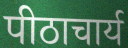
पीठाचार्य